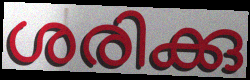
ശരിക്കു